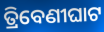
ତ୍ରିବେଣୀଘାଟ